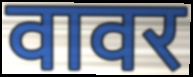
वावर